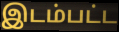
இடம்பட்ட